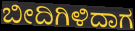
ಬೀದಿಗಿಳಿದಾಗ